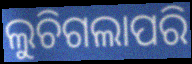
ଲୁଚିଗଲାପରି